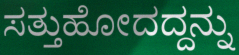
ಸತ್ತುಹೋದದ್ದನ್ನು